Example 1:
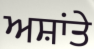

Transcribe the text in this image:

ਅਸ਼ਾਂਤੇ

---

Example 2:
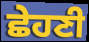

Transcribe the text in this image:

ਛੇਹਣੀ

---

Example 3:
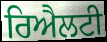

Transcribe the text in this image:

ਰਿਐਲਟੀ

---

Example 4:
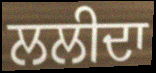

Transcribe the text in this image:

ਲਲੀਦਾ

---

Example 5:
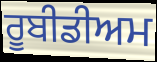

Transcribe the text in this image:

ਰੂਬੀਡੀਅਮ